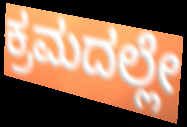
ಕ್ರಮದಲ್ಲೇ